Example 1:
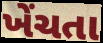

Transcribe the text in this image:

ખેંચતા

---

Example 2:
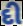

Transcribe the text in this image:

દી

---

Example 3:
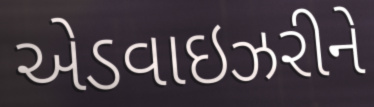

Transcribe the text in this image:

એડવાઇઝરીને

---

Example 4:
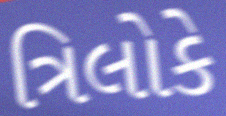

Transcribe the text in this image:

ત્રિલોકે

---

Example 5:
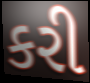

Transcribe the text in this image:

કરી